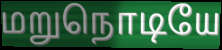
மறுநொடியே